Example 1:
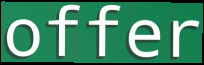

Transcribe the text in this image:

offer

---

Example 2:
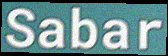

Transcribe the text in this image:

Sabar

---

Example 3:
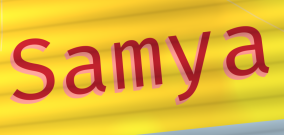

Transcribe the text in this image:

Samya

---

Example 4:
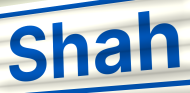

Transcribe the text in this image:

Shah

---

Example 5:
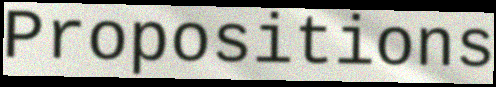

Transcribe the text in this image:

Propositions